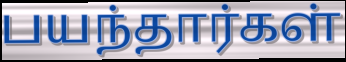
பயந்தார்கள்